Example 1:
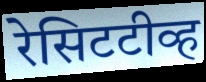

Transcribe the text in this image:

रेसिटटीव्ह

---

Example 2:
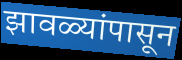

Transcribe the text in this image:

झावळ्यांपासून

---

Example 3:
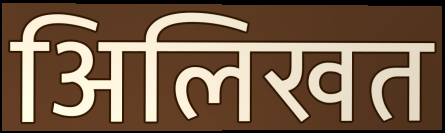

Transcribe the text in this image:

अिलिखत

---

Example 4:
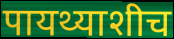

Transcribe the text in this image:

पायथ्याशीच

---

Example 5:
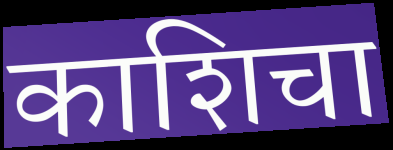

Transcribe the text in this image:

काशिचा